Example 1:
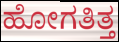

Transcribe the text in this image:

ಹೋಗತಿತ್ತ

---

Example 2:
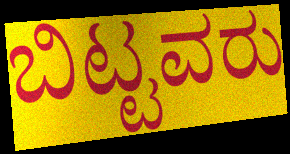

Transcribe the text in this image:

ಬಿಟ್ಟವರು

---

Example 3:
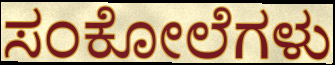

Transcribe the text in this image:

ಸಂಕೋಲೆಗಳು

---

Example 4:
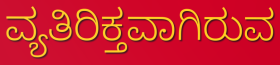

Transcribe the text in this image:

ವ್ಯತಿರಿಕ್ತವಾಗಿರುವ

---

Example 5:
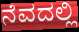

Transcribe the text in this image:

ನೆವದಲ್ಲಿ